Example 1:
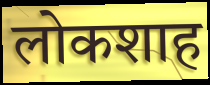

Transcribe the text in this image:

लोकशाह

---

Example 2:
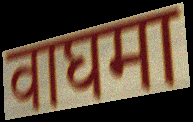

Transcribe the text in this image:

वाघमा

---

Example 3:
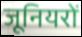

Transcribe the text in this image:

जूनियरों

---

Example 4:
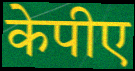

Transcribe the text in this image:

केपीए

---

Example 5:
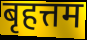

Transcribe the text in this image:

बृहत्तम